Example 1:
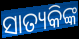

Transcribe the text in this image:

ସାତ୍ୟକିଙ୍କ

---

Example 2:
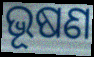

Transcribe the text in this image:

ଭୂଷଣ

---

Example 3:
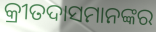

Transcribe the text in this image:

କ୍ରୀତଦାସମାନଙ୍କର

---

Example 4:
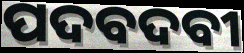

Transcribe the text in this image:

ପଦବଦବୀ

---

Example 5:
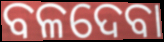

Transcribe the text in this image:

ବଳଦେବା